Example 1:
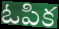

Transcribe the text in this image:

ఓపిక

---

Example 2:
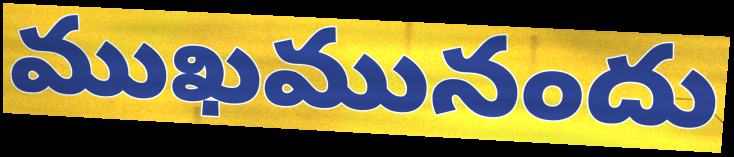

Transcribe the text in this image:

ముఖమునందు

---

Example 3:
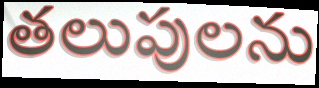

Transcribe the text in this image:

తలుపులను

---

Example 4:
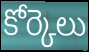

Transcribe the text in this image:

కోర్కెలు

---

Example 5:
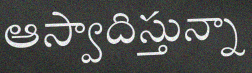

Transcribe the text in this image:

ఆస్వాదిస్తున్నా